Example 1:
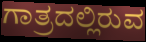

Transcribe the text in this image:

ಗಾತ್ರದಲ್ಲಿರುವ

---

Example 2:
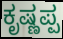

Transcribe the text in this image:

ಕೃಷ್ಣಪ್ಪ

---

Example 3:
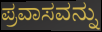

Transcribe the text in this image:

ಪ್ರವಾಸವನ್ನು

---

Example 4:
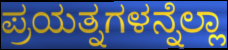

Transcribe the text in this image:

ಪ್ರಯತ್ನಗಳನ್ನೆಲ್ಲಾ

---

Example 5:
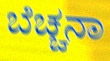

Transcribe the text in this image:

ಬೆಚ್ಚನಾ